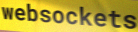
websockets